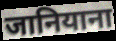
जानियाना